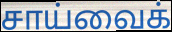
சாய்வைக்